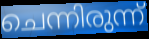
ചെന്നിരുന്ന്